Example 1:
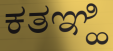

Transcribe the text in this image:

ಕತಞ್ಹಿ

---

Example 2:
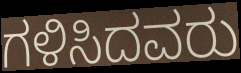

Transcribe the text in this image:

ಗಳಿಸಿದವರು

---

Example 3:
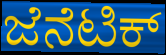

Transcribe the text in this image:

ಜೆನೆಟಿಕ್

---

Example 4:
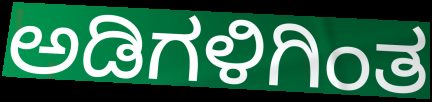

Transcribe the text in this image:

ಅಡಿಗಳಿಗಿಂತ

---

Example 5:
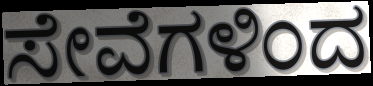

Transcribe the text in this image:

ಸೇವೆಗಳಿಂದ